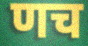
णच